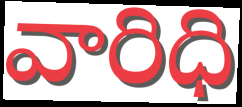
వారిధి